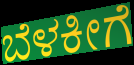
ಬೆಳಕೀಗೆ